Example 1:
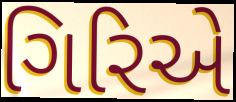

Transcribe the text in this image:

ગિરિએ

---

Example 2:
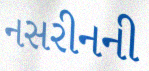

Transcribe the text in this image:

નસરીનની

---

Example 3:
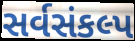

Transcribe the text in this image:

સર્વસંકલ્પ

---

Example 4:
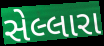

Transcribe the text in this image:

સેલ્લારા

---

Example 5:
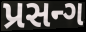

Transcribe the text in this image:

પ્રસન્ગ